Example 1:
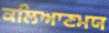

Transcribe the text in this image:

ਕਲਿਆਣਮਯ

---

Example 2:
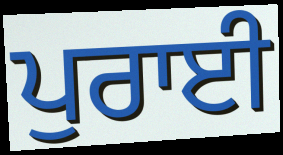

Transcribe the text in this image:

ਪੁਰਾਈ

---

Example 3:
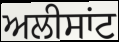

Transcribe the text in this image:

ਅਲੀਸਾਂਟ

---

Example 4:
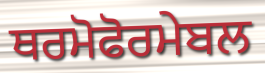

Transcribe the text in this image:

ਥਰਮੋਫੋਰਮੇਬਲ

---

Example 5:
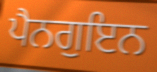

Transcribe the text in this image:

ਪੈਨਗੁਇਨ